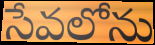
సేవలోను